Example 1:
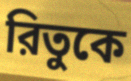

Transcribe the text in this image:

রিতুকে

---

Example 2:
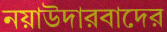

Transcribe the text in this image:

নয়াউদারবাদের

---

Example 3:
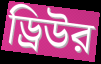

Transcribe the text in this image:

ড্রিউর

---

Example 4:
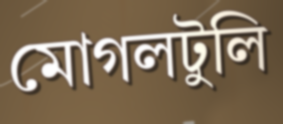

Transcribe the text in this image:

মোগলটুলি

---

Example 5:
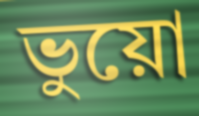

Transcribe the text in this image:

ভুয়ো